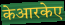
केआरकेए